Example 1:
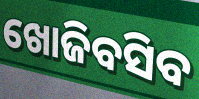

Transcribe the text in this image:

ଖୋଜିବସିବ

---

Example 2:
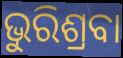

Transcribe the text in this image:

ଭୁରିଶ୍ରବା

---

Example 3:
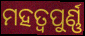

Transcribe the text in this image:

ମହତ୍ୱପୁର୍ଣ୍ଣ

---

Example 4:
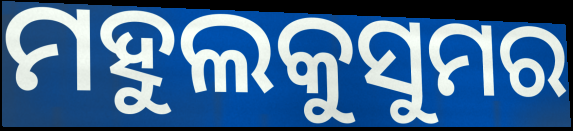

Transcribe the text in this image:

ମହୁଲକୁସୁମର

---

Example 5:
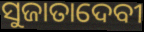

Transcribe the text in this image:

ସୁଜାତାଦେବୀ